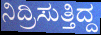
ನಿದ್ರಿಸುತ್ತಿದ್ದ